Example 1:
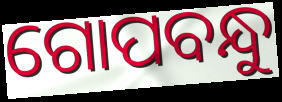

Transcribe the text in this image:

ଗୋପବନ୍ଧୁ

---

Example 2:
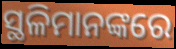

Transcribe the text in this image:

ସ୍ଥଳିମାନଙ୍କରେ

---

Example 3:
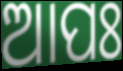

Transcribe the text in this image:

ଆପଃ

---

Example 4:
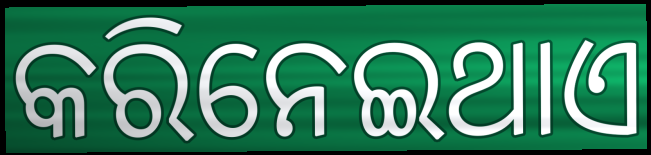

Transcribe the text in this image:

କରିନେଇଥାଏ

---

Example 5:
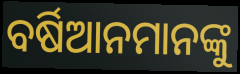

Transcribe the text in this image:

ବର୍ଷିଆନମାନଙ୍କୁ